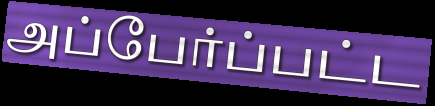
அப்பேர்ப்பட்ட